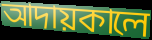
আদায়কালে